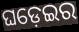
ଘଡ଼େଇର